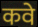
कवे